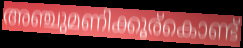
അഞ്ചുമണിക്കൂര്കൊണ്ട്